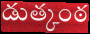
డుత్కంఠ